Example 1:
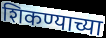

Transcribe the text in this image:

शिकण्याच्या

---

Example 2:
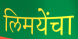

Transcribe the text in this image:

लिमयेंचा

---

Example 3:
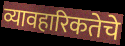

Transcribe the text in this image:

व्यावहारिकतेचे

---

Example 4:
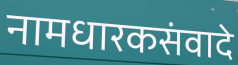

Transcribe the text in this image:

नामधारकसंवादे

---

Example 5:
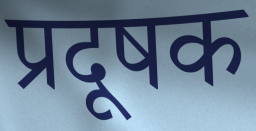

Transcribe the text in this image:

प्रदूषक